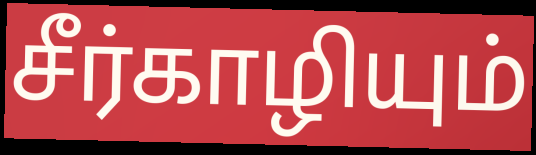
சீர்காழியும்